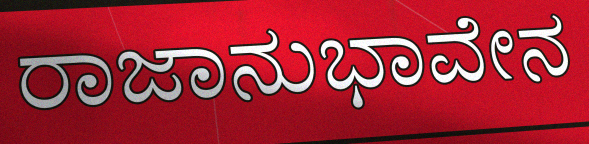
ರಾಜಾನುಭಾವೇನ